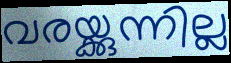
വരയ്ക്കുന്നില്ല